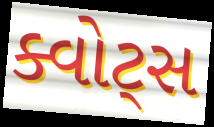
ક્વોટ્સ